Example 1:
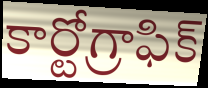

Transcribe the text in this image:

కార్టోగ్రాఫిక్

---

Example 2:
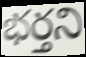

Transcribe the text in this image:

భర్తని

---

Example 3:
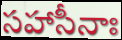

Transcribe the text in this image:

సహాసీనాః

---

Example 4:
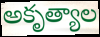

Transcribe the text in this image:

అకృత్యాల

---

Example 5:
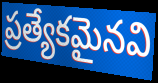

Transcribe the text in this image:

ప్రత్యేకమైనవి